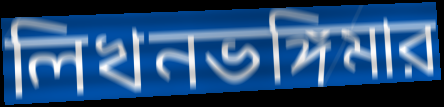
লিখনভঙ্গিমার